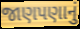
જાણપણાનું